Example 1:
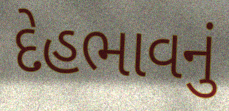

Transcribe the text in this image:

દેહભાવનું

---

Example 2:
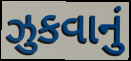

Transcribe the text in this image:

ઝુકવાનું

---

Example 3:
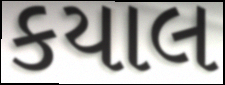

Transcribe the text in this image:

કયાલ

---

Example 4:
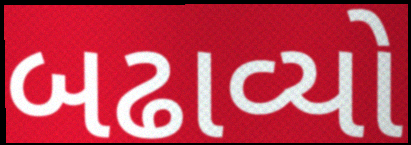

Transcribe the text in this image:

બઢાવ્યો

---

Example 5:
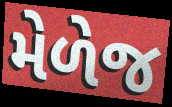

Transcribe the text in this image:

મેળેજ